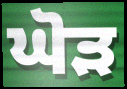
ਘੋੜ